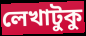
লেখাটুকু